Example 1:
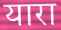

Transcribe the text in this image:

यारा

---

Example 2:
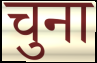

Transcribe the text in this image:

चुना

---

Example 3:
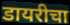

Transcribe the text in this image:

डायरीचा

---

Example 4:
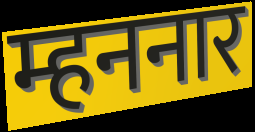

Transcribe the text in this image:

म्हननार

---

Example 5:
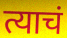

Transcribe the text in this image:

त्याचं